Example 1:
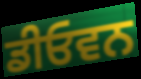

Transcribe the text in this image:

ਡੀਓਵਨ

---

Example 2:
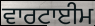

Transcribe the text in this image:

ਵਾਰਟਾਈਮ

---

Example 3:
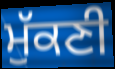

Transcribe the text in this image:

ਮੁੱਕਣੀ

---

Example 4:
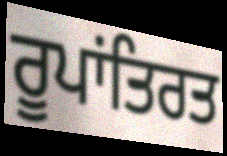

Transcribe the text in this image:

ਰੂਪਾਂਤਿਰਤ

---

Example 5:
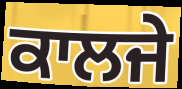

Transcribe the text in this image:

ਕਾਲਜੇ